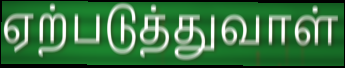
ஏற்படுத்துவாள்